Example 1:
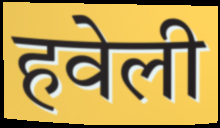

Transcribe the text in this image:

हवेली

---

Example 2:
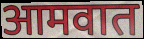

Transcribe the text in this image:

आमवात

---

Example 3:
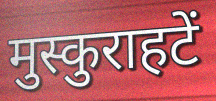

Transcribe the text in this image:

मुस्कुराहटें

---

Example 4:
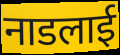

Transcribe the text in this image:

नाडलाई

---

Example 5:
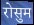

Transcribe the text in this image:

रोसुम